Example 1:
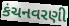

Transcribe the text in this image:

કંચનવરણી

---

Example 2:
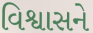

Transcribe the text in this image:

વિશ્વાસને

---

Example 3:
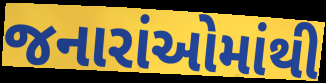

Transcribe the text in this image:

જનારાંઓમાંથી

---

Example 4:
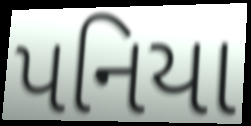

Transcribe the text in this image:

પનિયા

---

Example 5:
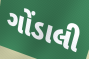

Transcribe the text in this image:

ગોંડાલી